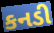
કનડી